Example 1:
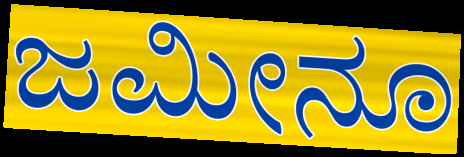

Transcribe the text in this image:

ಜಮೀನೂ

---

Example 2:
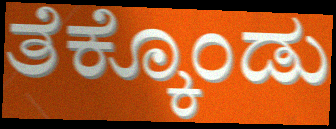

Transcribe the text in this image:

ತೆಕ್ಕೊಂಡು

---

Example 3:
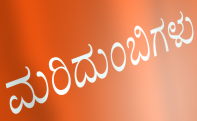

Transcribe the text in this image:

ಮರಿದುಂಬಿಗಳು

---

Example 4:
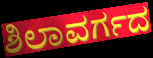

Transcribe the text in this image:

ಶಿಲಾವರ್ಗದ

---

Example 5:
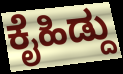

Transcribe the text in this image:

ಕೈಹಿಡ್ದು